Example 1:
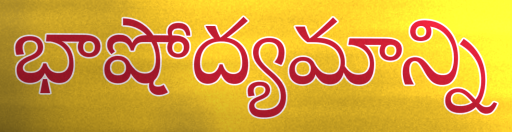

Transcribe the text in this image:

భాషోద్యమాన్ని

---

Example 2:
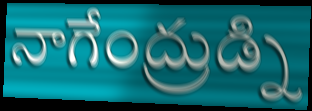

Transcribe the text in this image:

నాగేంద్రుడ్ని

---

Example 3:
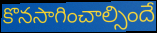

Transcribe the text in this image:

కొనసాగించాల్సిందే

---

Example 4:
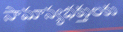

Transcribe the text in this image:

సామాన్యభక్తులకు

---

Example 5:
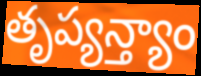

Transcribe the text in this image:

తృప్యన్త్యాం